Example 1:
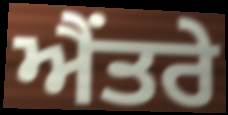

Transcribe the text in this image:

ਐਂਤਰੇ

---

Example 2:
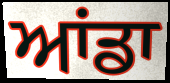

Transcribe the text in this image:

ਆਂਡਾ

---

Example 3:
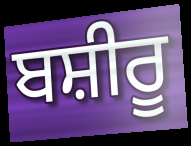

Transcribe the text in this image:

ਬਸ਼ੀਰੂ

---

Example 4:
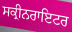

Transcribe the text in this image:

ਸਕ੍ਰੀਨਰਾਇਟਰ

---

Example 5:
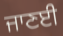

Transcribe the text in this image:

ਜਾਣਈ